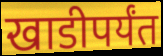
खाडीपर्यंत